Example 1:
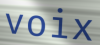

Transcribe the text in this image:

voix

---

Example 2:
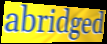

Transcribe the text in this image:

abridged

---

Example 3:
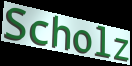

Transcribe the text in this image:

Scholz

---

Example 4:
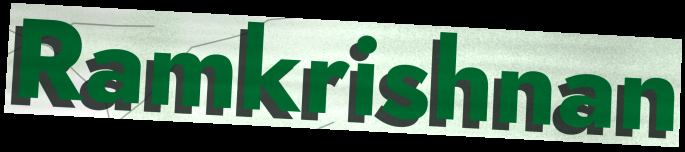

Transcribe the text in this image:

Ramkrishnan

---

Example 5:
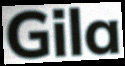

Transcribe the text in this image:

Gila